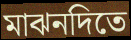
মাঝনদিতে